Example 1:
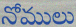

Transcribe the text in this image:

నోములు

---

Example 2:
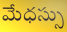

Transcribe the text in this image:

మేధస్సు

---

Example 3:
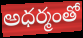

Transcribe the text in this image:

అధర్మంతో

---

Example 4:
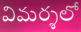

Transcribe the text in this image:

విమర్శలో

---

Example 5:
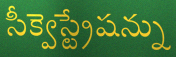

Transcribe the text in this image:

సీక్వెస్ట్రేషన్ను